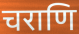
चराणि